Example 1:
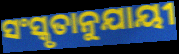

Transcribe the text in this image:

ସଂସ୍କୃତାନୁଯାୟୀ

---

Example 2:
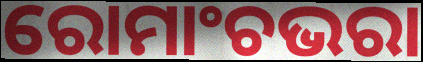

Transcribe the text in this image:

ରୋମାଂଚଭରା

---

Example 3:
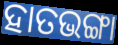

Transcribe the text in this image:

ହାତଭଙ୍ଗା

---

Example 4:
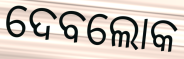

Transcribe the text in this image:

ଦେବଲୋକ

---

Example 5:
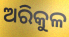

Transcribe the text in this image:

ଅରିକୁଳ